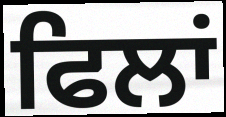
ਫਿਲਾਂ